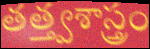
తత్త్వశాస్త్రం